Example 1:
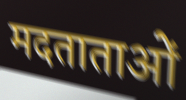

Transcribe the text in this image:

मदताताओं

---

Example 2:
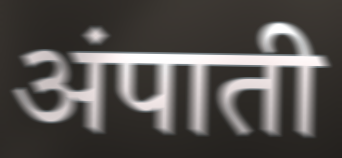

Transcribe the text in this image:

अंपाती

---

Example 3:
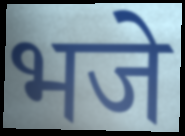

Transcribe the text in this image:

भजे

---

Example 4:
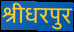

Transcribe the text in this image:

श्रीधरपुर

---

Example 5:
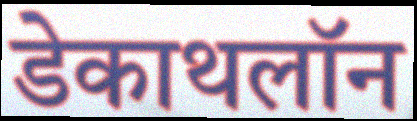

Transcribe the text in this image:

डेकाथलॉन